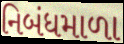
નિબંધમાળા